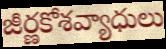
జీర్ణకోశవ్యాధులు